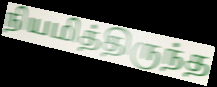
நியமித்திருந்த